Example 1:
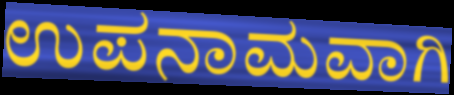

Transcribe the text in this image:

ಉಪನಾಮವಾಗಿ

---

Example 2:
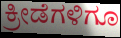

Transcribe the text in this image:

ಕ್ರೀಡೆಗಳಿಗೂ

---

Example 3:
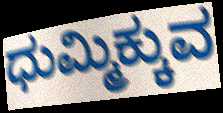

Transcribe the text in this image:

ಧುಮ್ಮಿಕ್ಕುವ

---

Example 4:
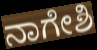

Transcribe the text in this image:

ನಾಗೇಶಿ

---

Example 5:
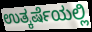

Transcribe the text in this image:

ಉತ್ಕರ್ಷೆಯಲ್ಲಿ